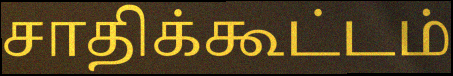
சாதிக்கூட்டம்